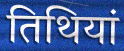
तिथियां